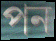
পন